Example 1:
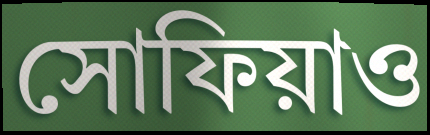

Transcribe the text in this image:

সোফিয়াও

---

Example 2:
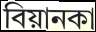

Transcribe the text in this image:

বিয়ানকা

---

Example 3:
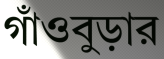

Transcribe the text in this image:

গাঁওবুড়ার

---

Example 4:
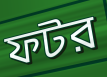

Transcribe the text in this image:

ফটর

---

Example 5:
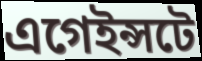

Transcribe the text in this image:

এগেইন্সটে